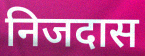
निजदास